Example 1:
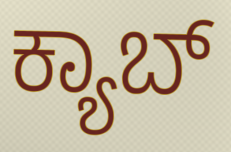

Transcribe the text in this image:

ಕ್ಯಾಬ್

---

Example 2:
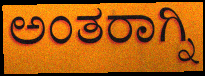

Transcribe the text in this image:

ಅಂತರಾಗ್ನಿ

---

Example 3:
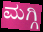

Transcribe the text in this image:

ಮಗ್ಗಿ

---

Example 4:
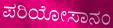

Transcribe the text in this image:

ಪರಿಯೋಸಾನಂ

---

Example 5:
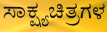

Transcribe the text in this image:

ಸಾಕ್ಷ್ಯಚಿತ್ರಗಳ